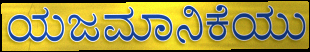
ಯಜಮಾನಿಕೆಯು